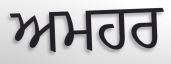
ਅਮਹਰ